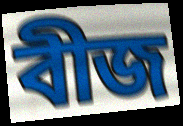
বীজ